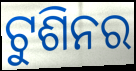
ଟୁଶିନର